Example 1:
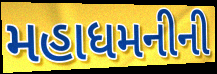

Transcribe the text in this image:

મહાધમનીની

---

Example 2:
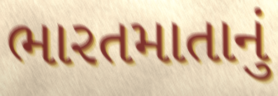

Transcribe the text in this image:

ભારતમાતાનું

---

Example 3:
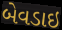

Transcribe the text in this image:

બેવડાઇ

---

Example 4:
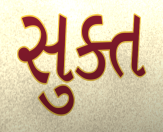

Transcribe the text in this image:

સુક્ત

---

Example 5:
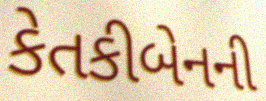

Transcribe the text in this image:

કેતકીબેનની